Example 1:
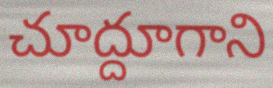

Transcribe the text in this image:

చూద్దూగాని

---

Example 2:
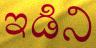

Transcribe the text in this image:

ఇడిని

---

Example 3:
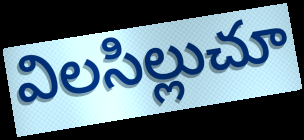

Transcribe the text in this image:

విలసిల్లుచూ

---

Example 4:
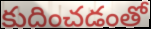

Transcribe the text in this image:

కుదించడంతో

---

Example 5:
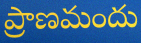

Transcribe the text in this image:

ప్రాణమందు